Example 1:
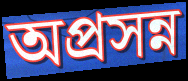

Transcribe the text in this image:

অপ্রসন্ন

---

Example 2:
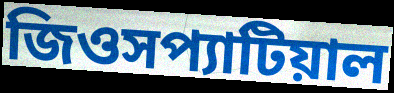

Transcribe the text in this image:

জিওসপ্যাটিয়াল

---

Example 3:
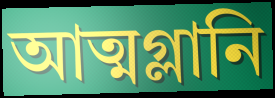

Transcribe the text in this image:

আত্মগ্লানি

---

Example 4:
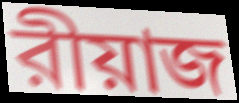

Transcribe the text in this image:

রীয়াজ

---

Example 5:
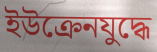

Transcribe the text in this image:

ইউক্রেনযুদ্ধে